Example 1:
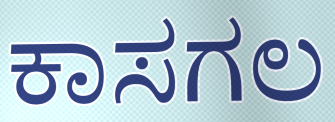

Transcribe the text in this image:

ಕಾಸಗಲ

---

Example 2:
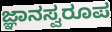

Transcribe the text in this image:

ಜ್ಞಾನಸ್ವರೂಪ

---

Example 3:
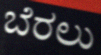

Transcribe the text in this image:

ಬೆರಲು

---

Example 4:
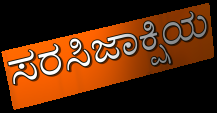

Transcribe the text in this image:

ಸರಸಿಜಾಕ್ಷಿಯ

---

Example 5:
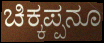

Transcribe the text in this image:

ಚಿಕ್ಕಪ್ಪನೂ